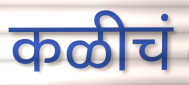
कळीचं